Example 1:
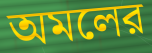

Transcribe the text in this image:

অমলের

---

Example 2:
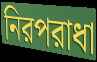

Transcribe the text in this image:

নিরপরাধা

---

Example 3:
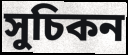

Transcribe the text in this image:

সুচিকন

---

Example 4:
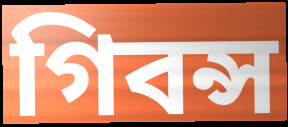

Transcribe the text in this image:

গিবন্স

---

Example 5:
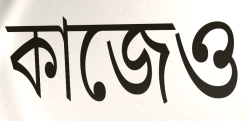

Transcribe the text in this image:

কাজেও